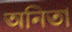
অনিতা